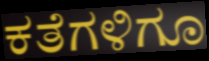
ಕತೆಗಳಿಗೂ